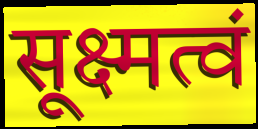
सूक्ष्मत्वं